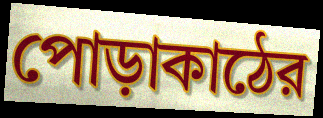
পোড়াকাঠের